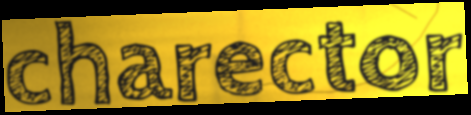
charector